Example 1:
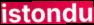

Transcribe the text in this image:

istondu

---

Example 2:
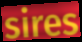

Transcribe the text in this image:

sires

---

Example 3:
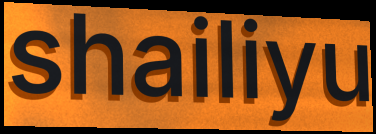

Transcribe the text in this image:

shailiyu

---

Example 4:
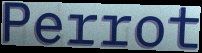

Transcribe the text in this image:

Perrot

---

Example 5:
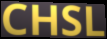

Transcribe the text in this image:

CHSL